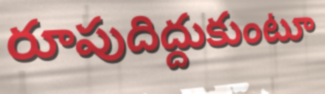
రూపుదిద్దుకుంటూ